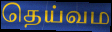
தெய்வம